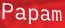
Papam